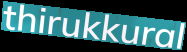
thirukkural